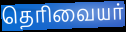
தெரிவையர்